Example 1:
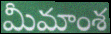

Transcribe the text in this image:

మీమాంశ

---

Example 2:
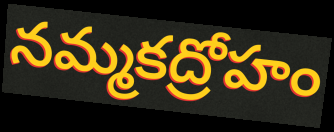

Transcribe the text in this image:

నమ్మకద్రోహం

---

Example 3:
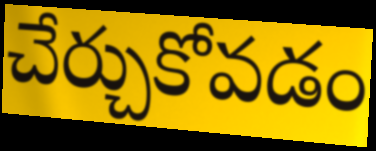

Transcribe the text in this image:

చేర్చుకోవడం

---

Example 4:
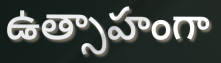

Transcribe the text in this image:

ఉత్సాహంగా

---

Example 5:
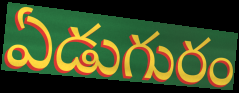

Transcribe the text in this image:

ఏడుగురం